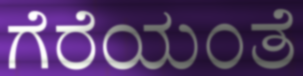
ಗೆರೆಯಂತೆ